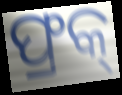
ଫ୍ରକ୍